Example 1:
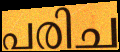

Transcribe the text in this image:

പരിച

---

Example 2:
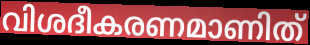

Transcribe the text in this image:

വിശദീകരണമാണിത്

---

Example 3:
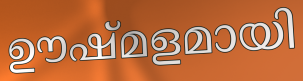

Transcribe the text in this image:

ഊഷ്മളമായി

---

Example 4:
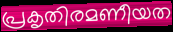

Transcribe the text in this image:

പ്രകൃതിരമണീയത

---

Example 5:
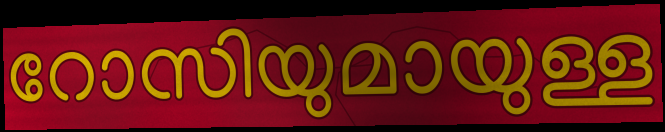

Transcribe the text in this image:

റോസിയുമായുള്ള